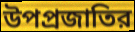
উপপ্রজাতির